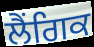
ਲੈਂਗਿਕ